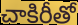
చాకిరీతో